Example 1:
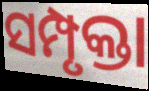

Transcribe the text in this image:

ସମ୍ପୃକ୍ତା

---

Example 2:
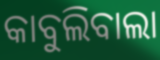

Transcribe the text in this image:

କାବୁଲିବାଲା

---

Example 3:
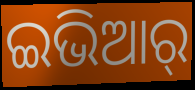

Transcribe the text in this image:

ଇଭିଆର୍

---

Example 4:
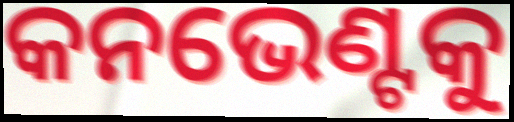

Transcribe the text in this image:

କନଭେଣ୍ଟକୁ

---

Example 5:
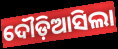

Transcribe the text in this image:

ଦୌଡ଼ିଆସିଲା